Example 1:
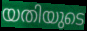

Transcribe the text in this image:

യതിയുടെ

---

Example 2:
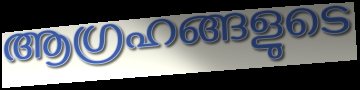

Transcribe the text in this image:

ആഗ്രഹങ്ങളുടെ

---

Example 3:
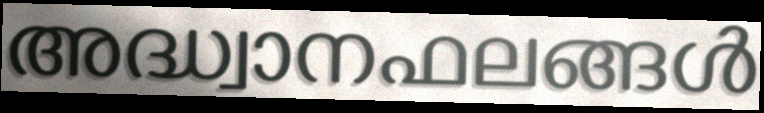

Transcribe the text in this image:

അദ്ധ്വാനഫലങ്ങൾ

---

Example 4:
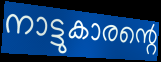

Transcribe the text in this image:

നാട്ടുകാരന്റെ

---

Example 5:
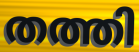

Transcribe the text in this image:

തത്തി